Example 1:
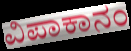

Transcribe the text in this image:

ವಿಪಾಕಾನಂ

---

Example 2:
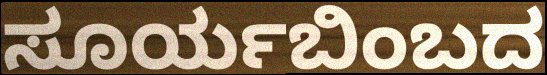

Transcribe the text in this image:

ಸೂರ್ಯಬಿಂಬದ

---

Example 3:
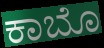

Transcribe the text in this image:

ಕಾಬೊ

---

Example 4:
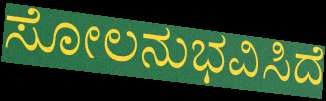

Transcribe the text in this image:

ಸೋಲನುಭವಿಸಿದೆ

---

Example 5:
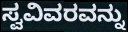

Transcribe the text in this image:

ಸ್ವವಿವರವನ್ನು